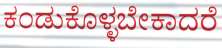
ಕಂಡುಕೊಳ್ಳಬೇಕಾದರೆ